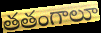
తతంగాలూ